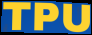
TPU